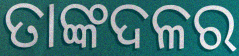
ତାଙ୍କଦଳର